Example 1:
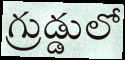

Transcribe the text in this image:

గ్రుడ్డులో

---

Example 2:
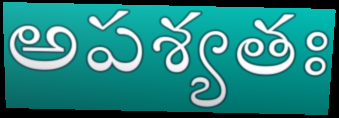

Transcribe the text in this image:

అపశ్యతః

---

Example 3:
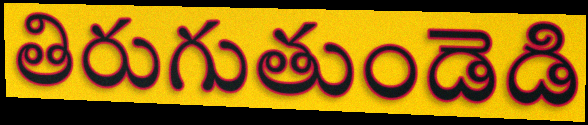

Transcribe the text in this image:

తిరుగుతుండెడి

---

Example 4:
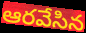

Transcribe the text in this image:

ఆరవేసిన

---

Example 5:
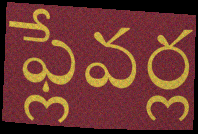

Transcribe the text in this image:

ఫ్లేవర్ల